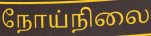
நோய்நிலை